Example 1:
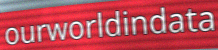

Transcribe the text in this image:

ourworldindata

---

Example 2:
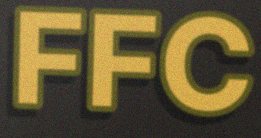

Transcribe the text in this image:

FFC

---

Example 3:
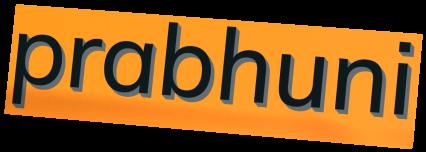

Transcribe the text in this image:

prabhuni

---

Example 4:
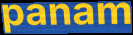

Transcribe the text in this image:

panam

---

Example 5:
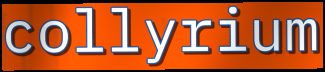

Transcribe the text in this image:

collyrium